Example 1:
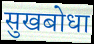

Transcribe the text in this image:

सुखबोधा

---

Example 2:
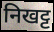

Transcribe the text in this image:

निखट्ट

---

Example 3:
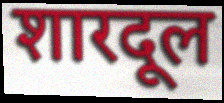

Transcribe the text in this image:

शारदूल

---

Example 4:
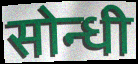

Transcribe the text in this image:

सोन्धी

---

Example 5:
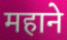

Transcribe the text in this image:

महाने